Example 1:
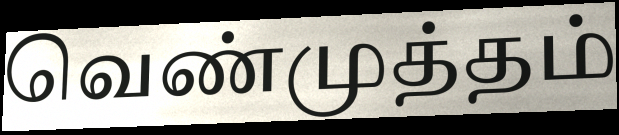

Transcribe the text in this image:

வெண்முத்தம்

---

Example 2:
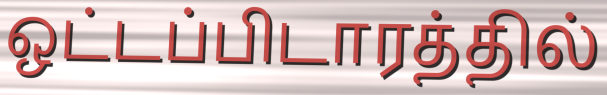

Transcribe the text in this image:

ஒட்டப்பிடாரத்தில்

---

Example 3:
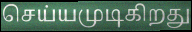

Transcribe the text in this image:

செய்யமுடிகிறது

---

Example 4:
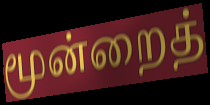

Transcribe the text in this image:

மூன்றைத்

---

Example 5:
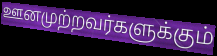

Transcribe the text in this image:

ஊனமுற்றவர்களுக்கும்